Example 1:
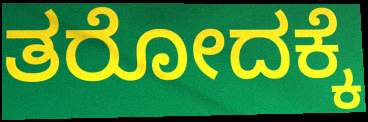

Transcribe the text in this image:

ತರೋದಕ್ಕೆ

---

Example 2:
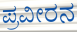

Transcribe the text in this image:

ಪ್ರವೀರನ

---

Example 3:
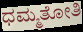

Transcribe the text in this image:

ಧಮ್ಮತೋತಿ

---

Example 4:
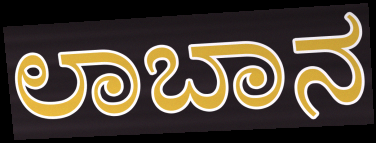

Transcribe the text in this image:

ಲಾಬಾನ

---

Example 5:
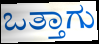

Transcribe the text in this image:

ಒತ್ತಾಗು